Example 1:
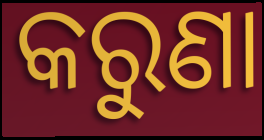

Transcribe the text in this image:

କରୁଣା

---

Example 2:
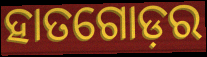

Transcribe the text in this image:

ହାତଗୋଡ଼ର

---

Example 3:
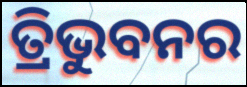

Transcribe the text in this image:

ତ୍ରିଭୁବନର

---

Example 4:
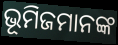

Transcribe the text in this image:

ଭୂମିଜମାନଙ୍କ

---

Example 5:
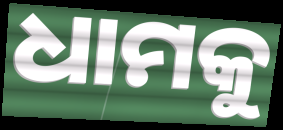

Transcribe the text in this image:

ଧାମକୁ